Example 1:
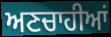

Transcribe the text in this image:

ਅਣਚਾਹੀਆਂ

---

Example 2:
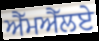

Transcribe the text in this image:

ਐੱਮਐੱਲਏ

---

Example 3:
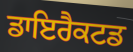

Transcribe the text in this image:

ਡਾਇਰੈਕਟਡ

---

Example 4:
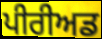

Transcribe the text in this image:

ਪੀਰੀਅਡ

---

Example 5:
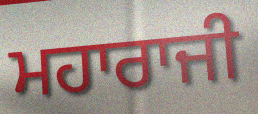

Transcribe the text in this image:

ਮਹਾਰਾਜੀ